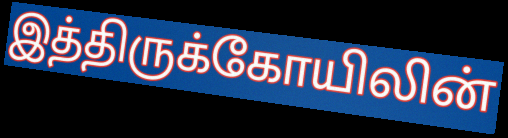
இத்திருக்கோயிலின்